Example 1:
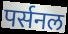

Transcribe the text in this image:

पर्सनल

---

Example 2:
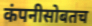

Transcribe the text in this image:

कंपनीसोबतच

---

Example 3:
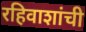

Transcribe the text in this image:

रहिवाशांची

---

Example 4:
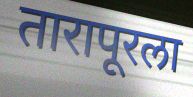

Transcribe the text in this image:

तारापूरला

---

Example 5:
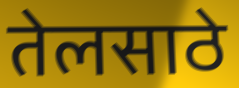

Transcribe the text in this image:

तेलसाठे